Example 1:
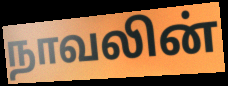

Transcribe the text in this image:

நாவலின்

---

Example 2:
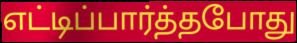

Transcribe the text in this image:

எட்டிப்பார்த்தபோது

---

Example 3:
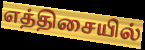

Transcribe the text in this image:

எத்திசையில்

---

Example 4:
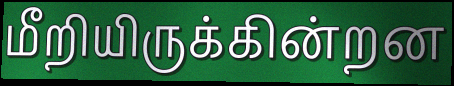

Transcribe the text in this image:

மீறியிருக்கின்றன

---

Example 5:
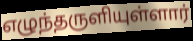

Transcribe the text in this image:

எழுந்தருளியுள்ளார்